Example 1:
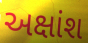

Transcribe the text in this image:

અક્ષાંશ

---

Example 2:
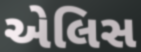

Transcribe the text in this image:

એલિસ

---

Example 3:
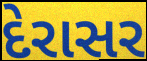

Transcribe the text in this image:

દેરાસર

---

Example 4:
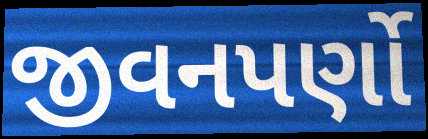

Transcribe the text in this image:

જીવનપર્ણો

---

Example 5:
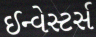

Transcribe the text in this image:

ઈન્વેસ્ટર્સ